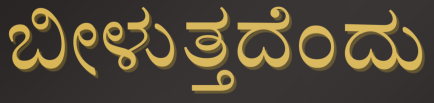
ಬೀಳುತ್ತದೆಂದು